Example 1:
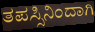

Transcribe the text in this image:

ತಪಸ್ಸಿನಿಂದಾಗಿ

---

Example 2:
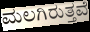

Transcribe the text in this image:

ಮಲಗಿರುತ್ತವೆ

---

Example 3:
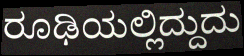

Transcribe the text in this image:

ರೂಢಿಯಲ್ಲಿದ್ದುದು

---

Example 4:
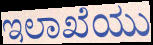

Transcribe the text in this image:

ಇಲಾಖೆಯು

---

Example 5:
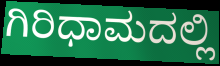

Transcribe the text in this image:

ಗಿರಿಧಾಮದಲ್ಲಿ